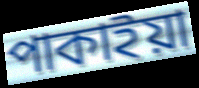
পাকাইয়া